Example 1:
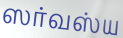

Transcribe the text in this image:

ஸர்வஸ்ய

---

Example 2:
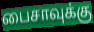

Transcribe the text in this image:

பைசாவுக்கு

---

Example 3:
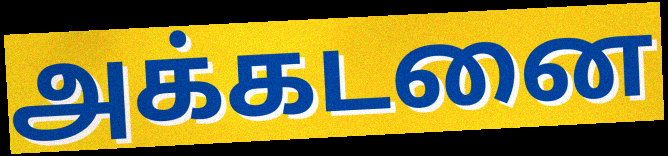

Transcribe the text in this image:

அக்கடனை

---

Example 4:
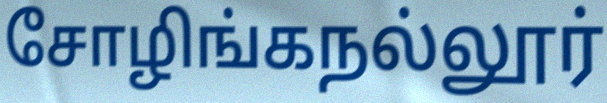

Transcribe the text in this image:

சோழிங்கநல்லூர்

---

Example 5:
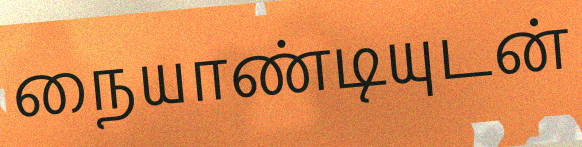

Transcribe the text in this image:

நையாண்டியுடன்